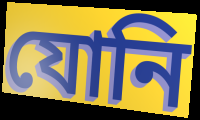
যোনি